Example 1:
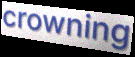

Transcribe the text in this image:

crowning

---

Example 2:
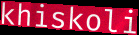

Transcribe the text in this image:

khiskoli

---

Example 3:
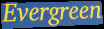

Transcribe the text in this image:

Evergreen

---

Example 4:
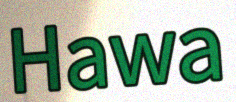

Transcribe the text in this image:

Hawa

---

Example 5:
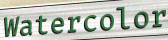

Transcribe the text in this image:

Watercolor